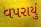
વપરાયું